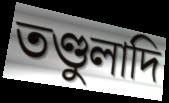
তণ্ডুলাদি